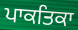
ਪਾਕਤਿਕਾ